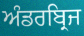
ਅੰਡਰਬ੍ਰਿਜ